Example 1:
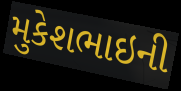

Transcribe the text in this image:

મુકેશભાઇની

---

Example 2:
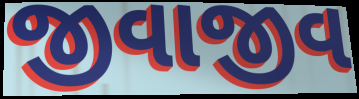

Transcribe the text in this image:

જીવાજીવ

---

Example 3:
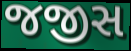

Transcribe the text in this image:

જજીસ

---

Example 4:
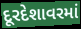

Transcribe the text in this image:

દૂરદેશાવરમાં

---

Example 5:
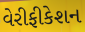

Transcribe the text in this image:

વેરીફીકેશન